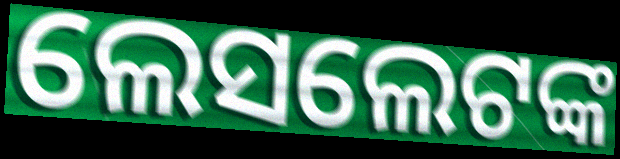
ଲେସଲେଟଙ୍କ